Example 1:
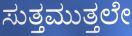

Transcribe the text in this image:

ಸುತ್ತಮುತ್ತಲೇ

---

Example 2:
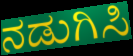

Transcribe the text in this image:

ನಡುಗಿಸಿ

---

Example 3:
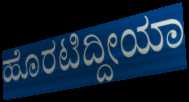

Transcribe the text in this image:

ಹೊರಟಿದ್ದೀಯಾ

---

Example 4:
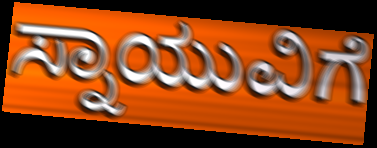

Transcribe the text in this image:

ಸ್ನಾಯುವಿಗೆ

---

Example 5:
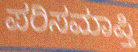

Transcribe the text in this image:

ಪರಿಸಮಾಪ್ತಿ